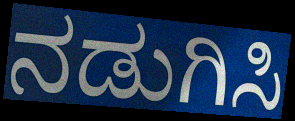
ನಡುಗಿಸಿ